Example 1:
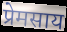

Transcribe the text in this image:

प्रेमसाय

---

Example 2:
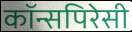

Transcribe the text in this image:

कॉन्सपिरेसी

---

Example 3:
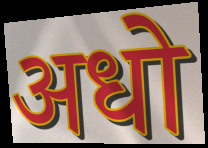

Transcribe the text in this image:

अधो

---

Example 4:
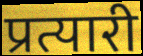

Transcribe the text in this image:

प्रत्यारी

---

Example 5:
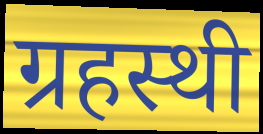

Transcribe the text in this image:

ग्रहस्थी